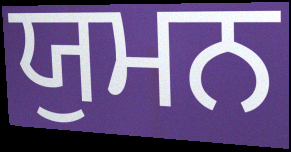
ਯੁਮਨ